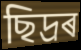
ছিদ্ৰৰ